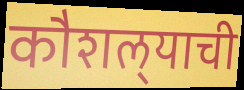
कौशल्याची